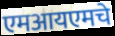
एमआयएमचे